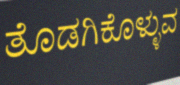
ತೊಡಗಿಕೊಳ್ಳುವ